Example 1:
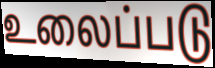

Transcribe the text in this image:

உலைப்படு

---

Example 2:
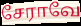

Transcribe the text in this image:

சேராவே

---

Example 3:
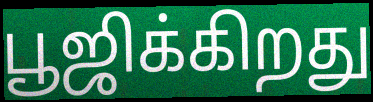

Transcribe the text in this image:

பூஜிக்கிறது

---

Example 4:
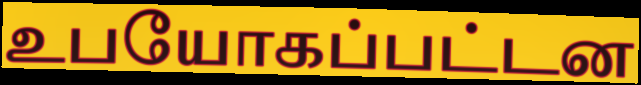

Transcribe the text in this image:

உபயோகப்பட்டன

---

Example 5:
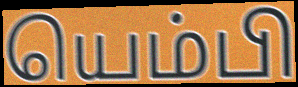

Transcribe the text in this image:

யெம்பி